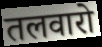
तलवारो